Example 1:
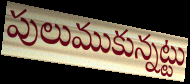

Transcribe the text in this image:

పులుముకున్నట్టు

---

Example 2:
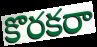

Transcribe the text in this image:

కొరకరా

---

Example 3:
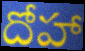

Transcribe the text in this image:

దోహా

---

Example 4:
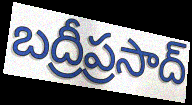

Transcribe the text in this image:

బద్రీప్రసాద్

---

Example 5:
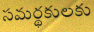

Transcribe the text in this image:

సమర్థకులకు